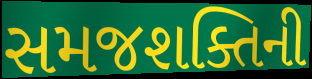
સમજશક્તિની